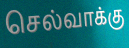
செல்வாக்கு